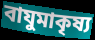
বাযুমাকৃষ্য